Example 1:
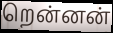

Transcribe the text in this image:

றென்னன்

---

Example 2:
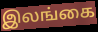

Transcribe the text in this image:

இலங்கை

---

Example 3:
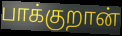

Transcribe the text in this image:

பாக்குறான்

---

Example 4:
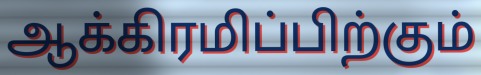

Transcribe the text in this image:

ஆக்கிரமிப்பிற்கும்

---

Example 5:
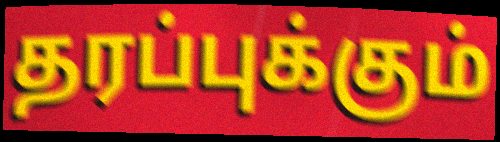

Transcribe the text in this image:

தரப்புக்கும்